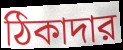
ঠিকাদার